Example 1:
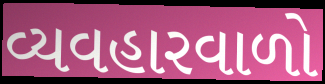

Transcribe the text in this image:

વ્યવહારવાળો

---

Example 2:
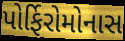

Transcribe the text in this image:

પોર્ફિરોમોનાસ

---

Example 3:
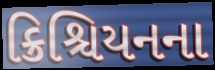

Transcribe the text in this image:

ક્રિશ્ચિયનના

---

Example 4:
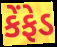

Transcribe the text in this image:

કેંફેડ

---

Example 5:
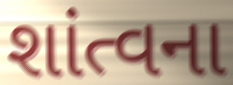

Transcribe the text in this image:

શાંત્વના